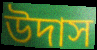
উদাস